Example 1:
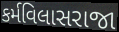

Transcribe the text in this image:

કર્મવિલાસરાજા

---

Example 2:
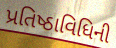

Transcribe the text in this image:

પ્રતિષ્ઠાવિધિની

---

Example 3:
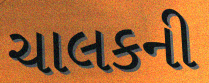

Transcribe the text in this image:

ચાલકની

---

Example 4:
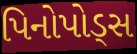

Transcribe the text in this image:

પિનોપોડ્સ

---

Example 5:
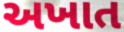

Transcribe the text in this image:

અખાત